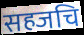
सहजचि